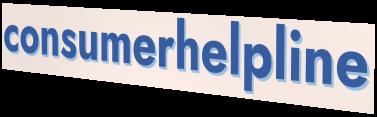
consumerhelpline